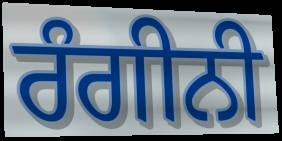
ਰੰਗੀਨੀ